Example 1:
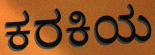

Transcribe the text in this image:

ಕರಕಿಯ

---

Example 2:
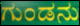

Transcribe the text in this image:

ಗುಂಡನು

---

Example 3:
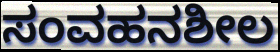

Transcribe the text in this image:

ಸಂವಹನಶೀಲ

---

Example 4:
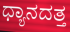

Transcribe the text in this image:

ಧ್ಯಾನದತ್ತ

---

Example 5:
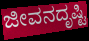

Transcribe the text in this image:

ಜೀವನದೃಷ್ಟಿ